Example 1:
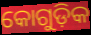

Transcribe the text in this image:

କୋଗୁଡ଼ିକ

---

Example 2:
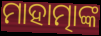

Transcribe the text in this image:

ମାହାତ୍ମାଙ୍କ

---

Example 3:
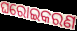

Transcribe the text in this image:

ଘରୋଇକରଣ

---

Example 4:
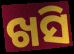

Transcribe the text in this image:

ଖସି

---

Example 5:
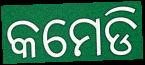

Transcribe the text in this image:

କମେଡି